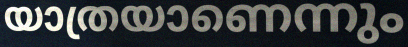
യാത്രയാണെന്നും